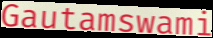
Gautamswami